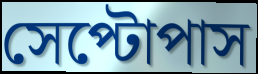
সেপ্টোপাস